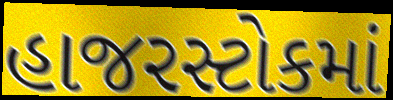
હાજરસ્ટોકમાં